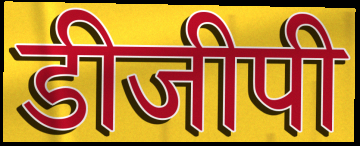
डीजीपी